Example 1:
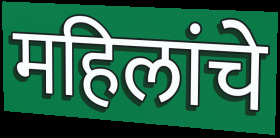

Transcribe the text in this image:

महिलांचे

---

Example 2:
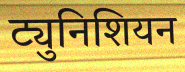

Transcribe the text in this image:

ट्युनिशियन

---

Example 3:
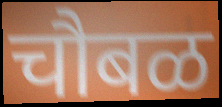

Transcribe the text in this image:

चौबळ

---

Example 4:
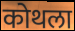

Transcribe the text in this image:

कोथला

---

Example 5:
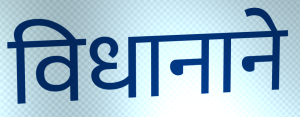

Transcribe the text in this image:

विधानाने